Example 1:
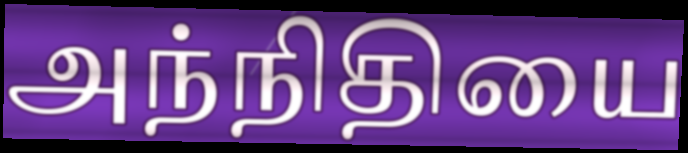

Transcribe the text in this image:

அந்நிதியை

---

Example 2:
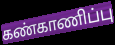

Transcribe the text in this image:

கண்காணிப்பு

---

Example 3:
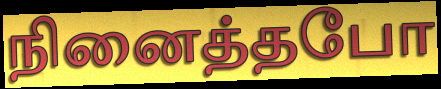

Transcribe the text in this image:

நினைத்தபோ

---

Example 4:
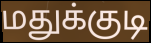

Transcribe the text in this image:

மதுக்குடி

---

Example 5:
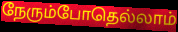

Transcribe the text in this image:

நேரும்போதெல்லாம்